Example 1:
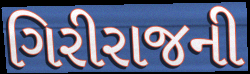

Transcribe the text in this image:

ગિરીરાજની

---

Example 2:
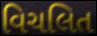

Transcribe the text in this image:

વિચલિત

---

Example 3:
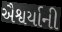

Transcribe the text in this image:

ઐશ્વર્યાની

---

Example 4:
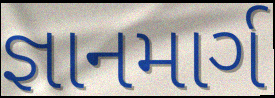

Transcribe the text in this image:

જ્ઞાનમાર્ગ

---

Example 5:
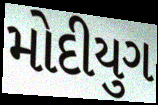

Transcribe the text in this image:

મોદીયુગ